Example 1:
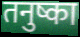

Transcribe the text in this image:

तनुष्का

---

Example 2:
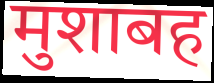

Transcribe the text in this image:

मुशाबह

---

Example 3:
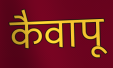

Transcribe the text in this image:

कैवापू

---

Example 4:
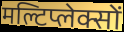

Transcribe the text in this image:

मल्टिप्लेक्सों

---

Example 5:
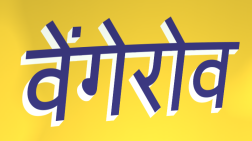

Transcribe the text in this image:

वेंगेरोव